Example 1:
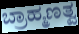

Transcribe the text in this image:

ಬ್ರಾಹ್ಮಣತ್ವ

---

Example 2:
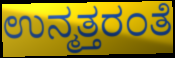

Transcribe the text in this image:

ಉನ್ಮತ್ತರಂತೆ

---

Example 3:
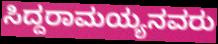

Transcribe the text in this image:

ಸಿದ್ದರಾಮಯ್ಯನವರು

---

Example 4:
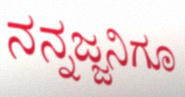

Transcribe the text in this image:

ನನ್ನಜ್ಜನಿಗೂ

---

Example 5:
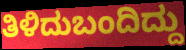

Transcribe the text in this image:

ತಿಳಿದುಬಂದಿದ್ದು